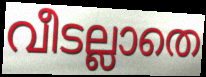
വീടല്ലാതെ